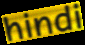
hindi